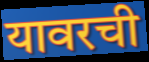
यावरची